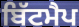
ਬਿੱਟਮੈਪ